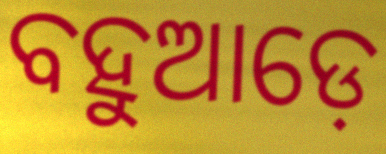
ବହୁଆଡ଼େ